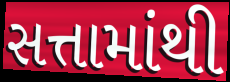
સત્તામાંથી